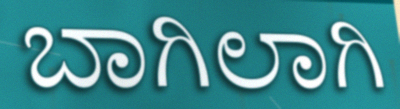
ಬಾಗಿಲಾಗಿ